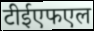
टीईएफएल